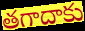
తగాదాకు